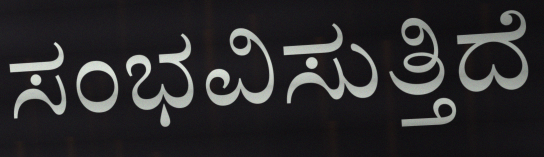
ಸಂಭವಿಸುತ್ತಿದೆ